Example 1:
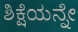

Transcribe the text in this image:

ಶಿಕ್ಷೆಯನ್ನೇ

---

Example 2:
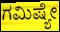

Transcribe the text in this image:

ಗಮಿಷ್ಯೇ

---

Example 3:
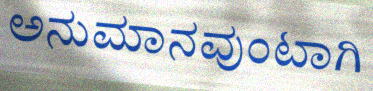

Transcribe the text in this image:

ಅನುಮಾನವುಂಟಾಗಿ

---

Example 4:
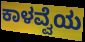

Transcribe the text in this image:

ಕಾಳವ್ವೆಯ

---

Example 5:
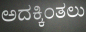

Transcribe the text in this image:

ಅದಕ್ಕಿಂತಲು